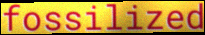
fossilized